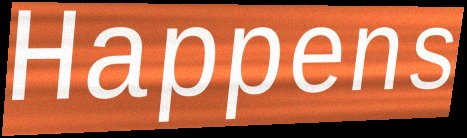
Happens